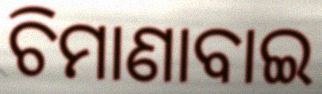
ଚିମାଣାବାଇ